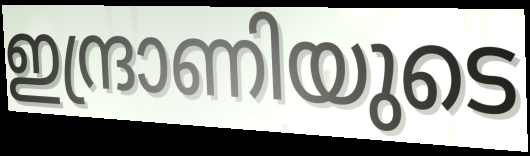
ഇന്ദ്രാണിയുടെ